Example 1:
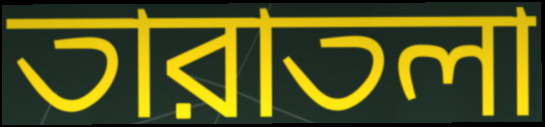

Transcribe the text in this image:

তারাতলা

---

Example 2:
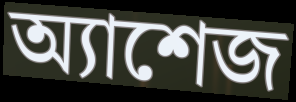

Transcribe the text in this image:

অ্যাশেজ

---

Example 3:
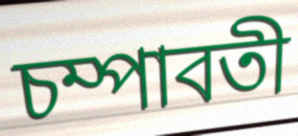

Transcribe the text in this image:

চম্পাবতী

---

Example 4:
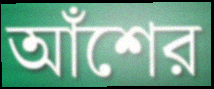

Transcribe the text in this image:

আঁশের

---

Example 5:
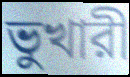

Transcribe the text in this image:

ভুখারী